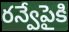
రన్వేపైకి